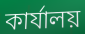
কাৰ্যালয়